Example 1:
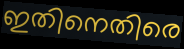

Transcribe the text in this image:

ഇതിനെതിരെ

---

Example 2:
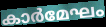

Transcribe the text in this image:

കാർമേഘം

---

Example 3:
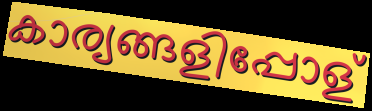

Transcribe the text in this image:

കാര്യങ്ങളിപ്പോള്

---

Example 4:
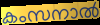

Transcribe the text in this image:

കംസനാൽ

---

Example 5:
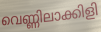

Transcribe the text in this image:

വെണ്ണിലാക്കിളി